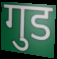
गुड